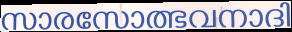
സാരസോത്ഭവനാദി